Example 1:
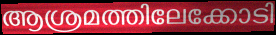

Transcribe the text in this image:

ആശ്രമത്തിലേക്കോടി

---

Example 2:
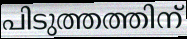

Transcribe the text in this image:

പിടുത്തത്തിന്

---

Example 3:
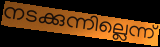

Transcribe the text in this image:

നടക്കുന്നില്ലെന്ന്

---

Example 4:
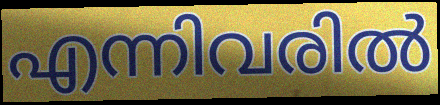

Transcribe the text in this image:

എന്നിവരിൽ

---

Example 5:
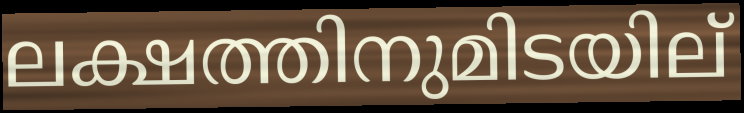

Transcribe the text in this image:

ലക്ഷത്തിനുമിടയില്